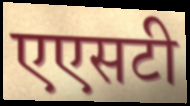
एएसटी